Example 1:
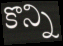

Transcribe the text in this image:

కొన్ని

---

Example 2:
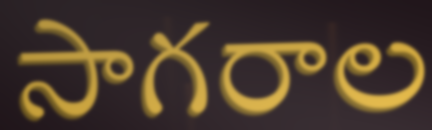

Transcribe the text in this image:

సాగరాల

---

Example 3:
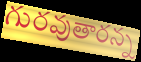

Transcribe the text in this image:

గురవుతారన్న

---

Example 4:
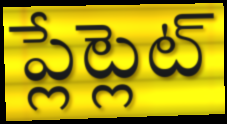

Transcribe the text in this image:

ప్లేట్లెట్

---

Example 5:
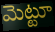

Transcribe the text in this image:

మెట్టూ